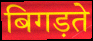
बिगड़ते